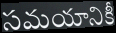
సమయానికీ